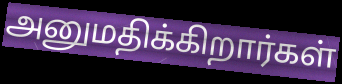
அனுமதிக்கிறார்கள்